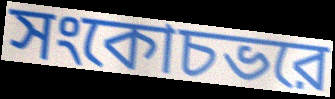
সংকোচভরে